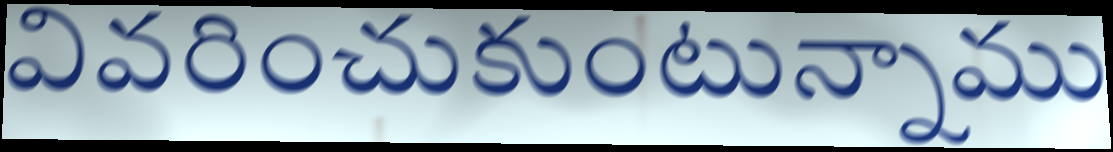
వివరించుకుంటున్నాము